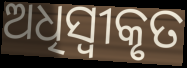
ଅଧିସ୍ୱୀକୃତ